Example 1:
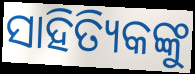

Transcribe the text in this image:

ସାହିତ୍ୟିକଙ୍କୁ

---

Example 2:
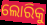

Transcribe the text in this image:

ଲୋରିକୁ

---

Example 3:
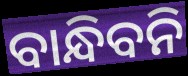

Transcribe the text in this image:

ବାନ୍ଧିବନି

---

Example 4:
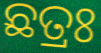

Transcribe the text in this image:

ଛତ୍ରଃ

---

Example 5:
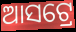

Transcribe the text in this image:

ଆସଟ୍ରେ